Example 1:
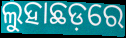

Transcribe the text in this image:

ଲୁହାଛଡ଼ରେ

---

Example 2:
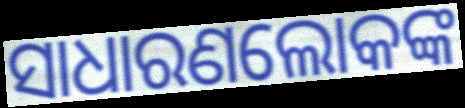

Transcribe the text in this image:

ସାଧାରଣଲୋକଙ୍କ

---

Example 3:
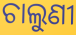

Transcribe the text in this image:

ଚାଲୁଣୀ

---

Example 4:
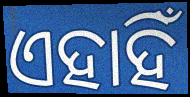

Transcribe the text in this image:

ଏହାହିଁ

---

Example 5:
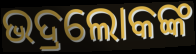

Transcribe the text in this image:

ଭଦ୍ରଲୋକଙ୍କ